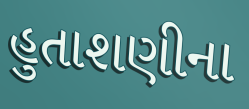
હુતાશણીના